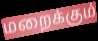
மறைக்கும்